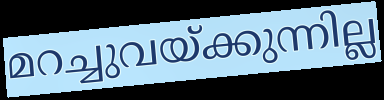
മറച്ചുവയ്ക്കുന്നില്ല